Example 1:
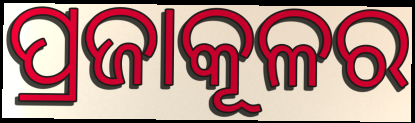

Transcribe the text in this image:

ପ୍ରଜାକୂଳର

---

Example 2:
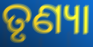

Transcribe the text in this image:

ତୃଣ୍ୟା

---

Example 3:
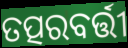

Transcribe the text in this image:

ତତ୍ପରବର୍ତ୍ତୀ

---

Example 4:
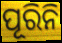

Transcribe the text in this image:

ପୂରିନି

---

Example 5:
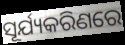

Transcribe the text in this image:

ସୂର୍ଯ୍ୟକରିଣରେ